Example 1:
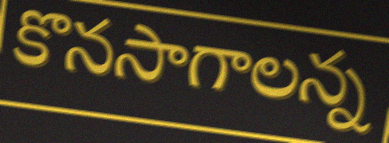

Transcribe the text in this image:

కొనసాగాలన్న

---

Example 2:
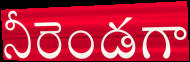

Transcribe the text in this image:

నీరెండగా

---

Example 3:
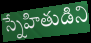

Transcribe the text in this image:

స్నేహితుడిని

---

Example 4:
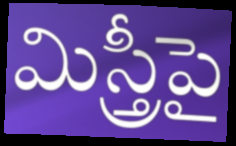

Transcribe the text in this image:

మిస్త్రీపై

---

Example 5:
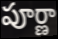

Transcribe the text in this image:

పూర్ణా